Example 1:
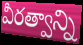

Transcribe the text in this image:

వీరత్వాన్ని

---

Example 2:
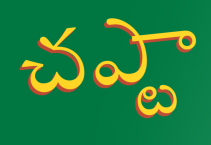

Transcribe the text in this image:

చఎ్టా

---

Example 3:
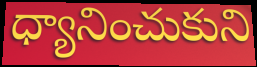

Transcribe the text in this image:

ధ్యానించుకుని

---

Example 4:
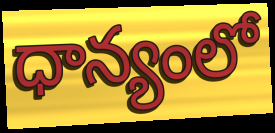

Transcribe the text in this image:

ధాన్యంలో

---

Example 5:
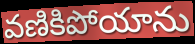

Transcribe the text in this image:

వణికిపోయాను